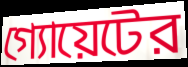
গ্যোয়েটের